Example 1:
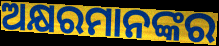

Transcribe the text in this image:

ଅକ୍ଷରମାନଙ୍କର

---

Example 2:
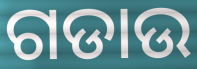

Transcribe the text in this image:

ଗଡାଉ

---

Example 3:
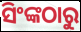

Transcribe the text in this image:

ସିଂଙ୍କଠାରୁ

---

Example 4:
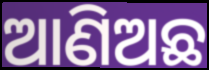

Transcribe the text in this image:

ଆଣିଅଛ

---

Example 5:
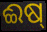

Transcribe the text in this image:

ଈଷ୍